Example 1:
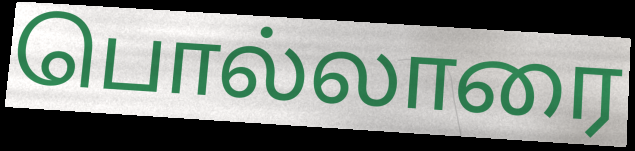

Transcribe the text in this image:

பொல்லாரை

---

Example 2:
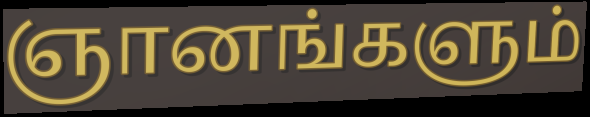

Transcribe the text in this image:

ஞானங்களும்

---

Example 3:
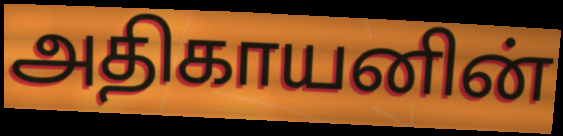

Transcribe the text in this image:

அதிகாயனின்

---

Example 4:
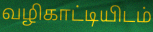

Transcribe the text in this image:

வழிகாட்டியிடம்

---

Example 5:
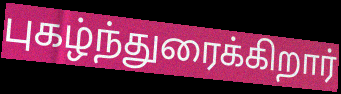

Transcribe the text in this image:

புகழ்ந்துரைக்கிறார்